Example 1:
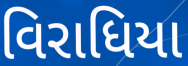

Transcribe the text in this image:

વિરાધિયા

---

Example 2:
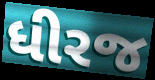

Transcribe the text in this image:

ધીરજ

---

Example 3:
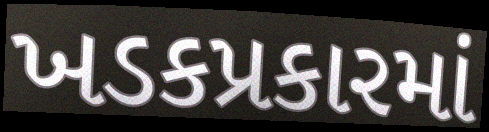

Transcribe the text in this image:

ખડકપ્રકારમાં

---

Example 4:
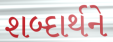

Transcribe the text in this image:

શબ્દાર્થને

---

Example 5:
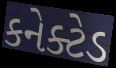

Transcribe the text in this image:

કનેક્ટેડ